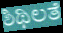
ಶಿಥಿಲತೆ